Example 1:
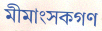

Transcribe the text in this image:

মীমাংসকগণ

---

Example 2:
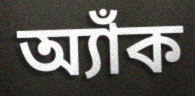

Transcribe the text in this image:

অ্যাঁক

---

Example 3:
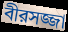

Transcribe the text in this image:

বীরসজ্জা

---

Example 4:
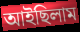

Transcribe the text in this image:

আইছিলাম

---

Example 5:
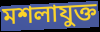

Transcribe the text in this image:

মশলাযুক্ত